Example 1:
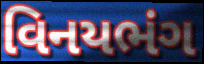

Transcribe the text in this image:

વિનયભંગ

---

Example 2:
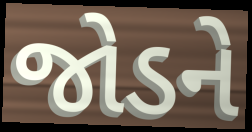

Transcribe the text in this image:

જોડને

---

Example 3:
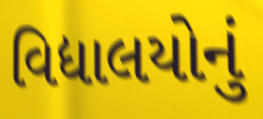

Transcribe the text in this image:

વિદ્યાલયોનું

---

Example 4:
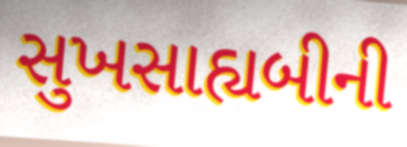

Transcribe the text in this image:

સુખસાહ્યબીની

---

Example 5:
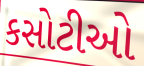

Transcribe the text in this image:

કસોટીઓ